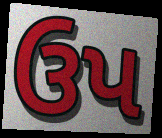
ઉપ